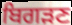
ਬਿਗੜਣ